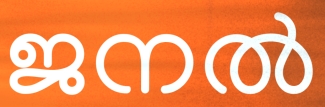
ജനൽ